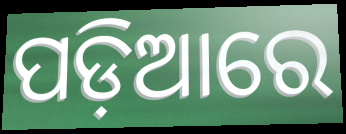
ପଡ଼ିଆରେ